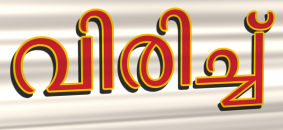
വിരിച്ച്